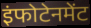
इंफोटेनमेंट